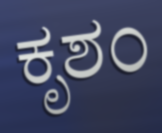
ಕೃಶಂ